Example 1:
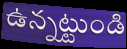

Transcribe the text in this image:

ఉన్నట్టుండి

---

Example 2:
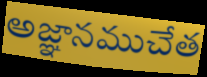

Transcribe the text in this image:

అజ్ఞానముచేత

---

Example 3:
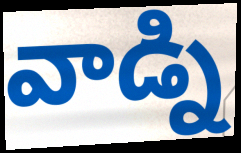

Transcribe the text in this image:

వాడ్ని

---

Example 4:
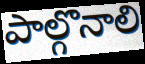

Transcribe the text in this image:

పాల్గొనాలి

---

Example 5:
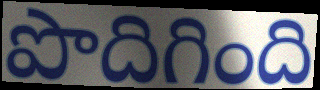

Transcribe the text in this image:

పొదిగింది